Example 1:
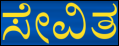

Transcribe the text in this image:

ಸೇವಿತ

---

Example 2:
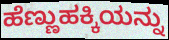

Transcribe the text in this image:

ಹೆಣ್ಣುಹಕ್ಕಿಯನ್ನು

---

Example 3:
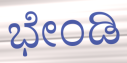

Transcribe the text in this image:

ಭೇಂಡಿ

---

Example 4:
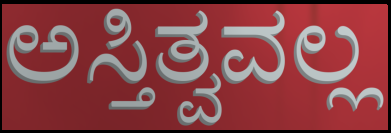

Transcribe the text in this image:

ಅಸ್ತಿತ್ವವಲ್ಲ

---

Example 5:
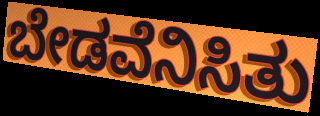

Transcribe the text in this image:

ಬೇಡವೆನಿಸಿತು